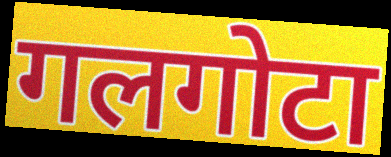
गलगोटा